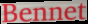
Bennet